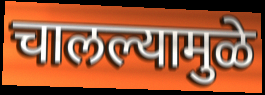
चालल्यामुळे